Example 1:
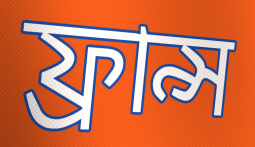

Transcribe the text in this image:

ফ্ৰান্স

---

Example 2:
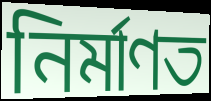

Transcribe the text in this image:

নিৰ্মাণত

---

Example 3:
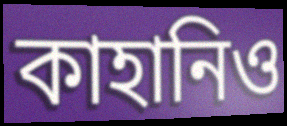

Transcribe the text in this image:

কাহানিও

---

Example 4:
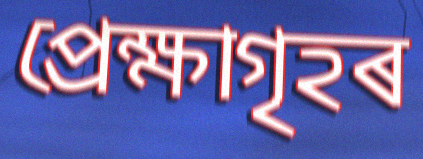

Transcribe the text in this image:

প্ৰেক্ষাগৃহৰ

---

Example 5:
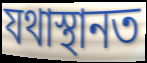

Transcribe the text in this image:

যথাস্থানত